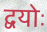
द्वयोः